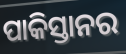
ପାକିସ୍ତାନର